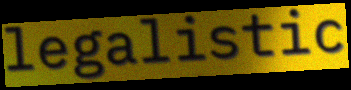
legalistic